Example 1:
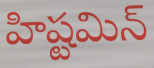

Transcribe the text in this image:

హిష్టమిన్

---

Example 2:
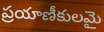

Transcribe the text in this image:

ప్రయాణీకులమై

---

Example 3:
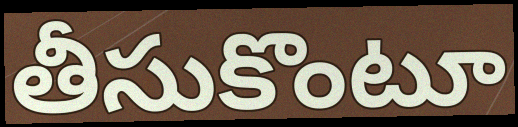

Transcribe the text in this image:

తీసుకొంటూ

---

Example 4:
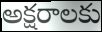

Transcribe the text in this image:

అక్షరాలకు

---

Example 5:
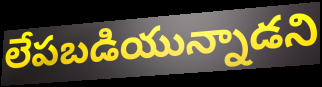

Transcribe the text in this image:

లేపబడియున్నాడని